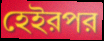
হেইরপর